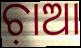
ଚ଼ାଆ